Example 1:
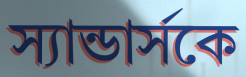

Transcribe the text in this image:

স্যান্ডার্সকে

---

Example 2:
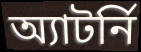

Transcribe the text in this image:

অ্যাটর্নি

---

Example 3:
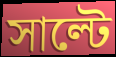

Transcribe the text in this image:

সাল্টে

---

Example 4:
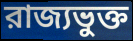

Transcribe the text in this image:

রাজ্যভুক্ত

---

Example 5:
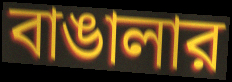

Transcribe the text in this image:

বাঙালার